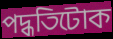
পদ্ধতিটোক